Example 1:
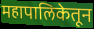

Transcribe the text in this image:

महापालिकेतून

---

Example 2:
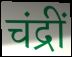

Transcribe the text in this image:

चंद्रीं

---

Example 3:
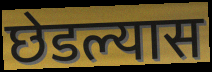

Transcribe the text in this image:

छेडल्यास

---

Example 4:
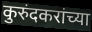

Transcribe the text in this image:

कुरुंदकरांच्या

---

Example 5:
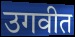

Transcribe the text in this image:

उगवीत